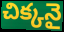
చిక్కనై